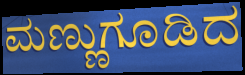
ಮಣ್ಣುಗೂಡಿದ